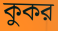
কুকর